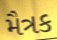
મૈત્રક